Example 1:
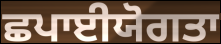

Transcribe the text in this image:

ਛਪਾਈਯੋਗਤਾ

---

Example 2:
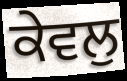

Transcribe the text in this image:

ਕੇਵਲੁ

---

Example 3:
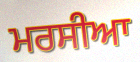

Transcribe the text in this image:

ਮਰਸੀਆ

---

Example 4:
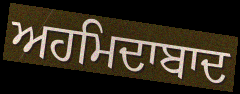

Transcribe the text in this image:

ਅਹਮਿਦਾਬਾਦ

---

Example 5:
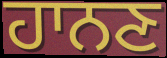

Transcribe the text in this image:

ਹਾਨਣ